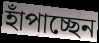
হাঁপাচ্ছেন